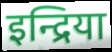
इन्द्रिया